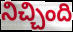
నిచ్చింది